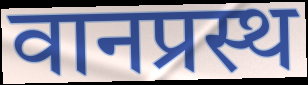
वानप्रस्थ